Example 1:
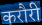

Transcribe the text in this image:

करौरी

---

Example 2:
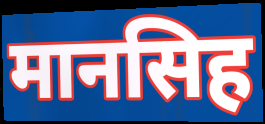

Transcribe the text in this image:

मानसिह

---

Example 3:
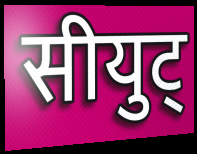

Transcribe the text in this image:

सीयुट्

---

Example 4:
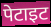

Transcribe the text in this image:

पेटाइट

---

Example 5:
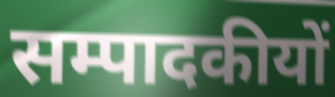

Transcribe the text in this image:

सम्पादकीयों